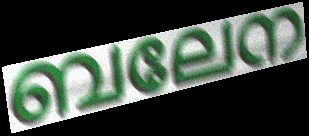
ബലേന